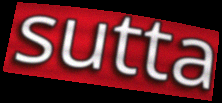
sutta